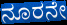
ನೂರನೇ